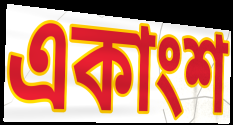
একাংশ